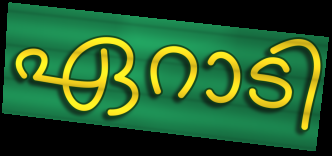
ഏറാടി